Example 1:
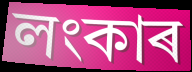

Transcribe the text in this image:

লংকাৰ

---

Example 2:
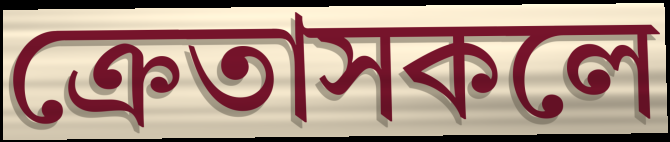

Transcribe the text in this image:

ক্ৰেতাসকলে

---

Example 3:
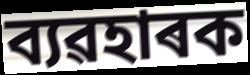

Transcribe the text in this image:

ব্যৱহাৰক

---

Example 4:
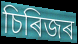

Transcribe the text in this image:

চিৰিজৰ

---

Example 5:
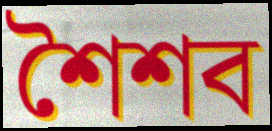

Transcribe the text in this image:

শৈশব